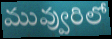
మువ్వురిలో